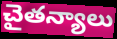
చైతన్యాలు